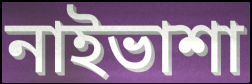
নাইভাশা